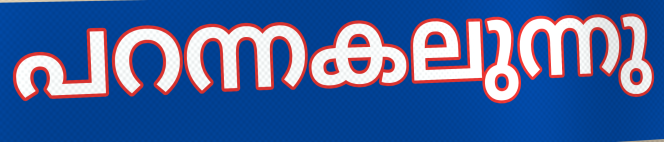
പറന്നകലുന്നു